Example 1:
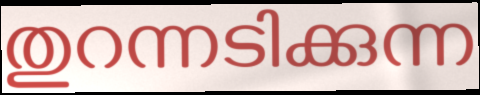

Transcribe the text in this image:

തുറന്നടിക്കുന്ന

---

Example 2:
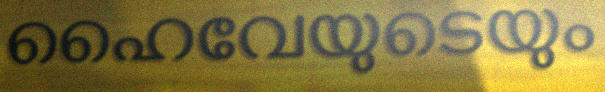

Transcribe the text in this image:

ഹൈവേയുടെയും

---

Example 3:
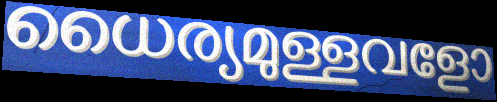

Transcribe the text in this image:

ധൈര്യമുള്ളവളോ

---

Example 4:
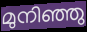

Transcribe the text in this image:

മുനിഞ്ഞു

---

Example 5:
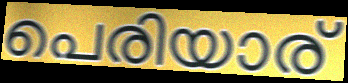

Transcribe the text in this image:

പെരിയാര്